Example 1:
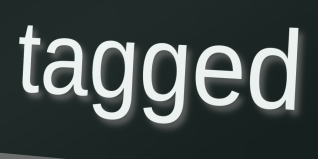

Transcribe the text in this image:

tagged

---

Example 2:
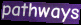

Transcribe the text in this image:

pathways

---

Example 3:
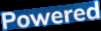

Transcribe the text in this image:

Powered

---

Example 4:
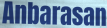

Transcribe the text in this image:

Anbarasan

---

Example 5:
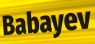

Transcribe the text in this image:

Babayev